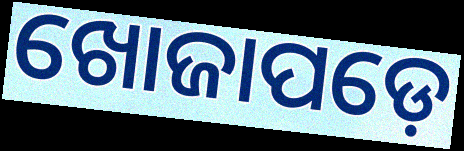
ଖୋଜାପଡ଼େ